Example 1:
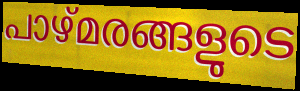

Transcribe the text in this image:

പാഴ്മരങ്ങളുടെ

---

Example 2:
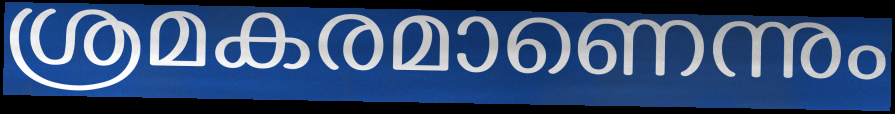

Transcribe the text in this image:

ശ്രമകരമാണെന്നും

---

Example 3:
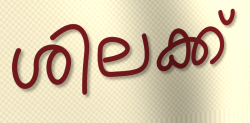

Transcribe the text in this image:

ശിലക്ക്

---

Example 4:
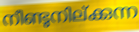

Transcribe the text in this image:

നീണ്ടുനില്ക്കുന്ന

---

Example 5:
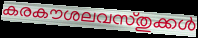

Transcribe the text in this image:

കരകൗശലവസ്തുക്കൾ